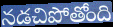
నడచిపోతోంది